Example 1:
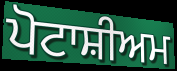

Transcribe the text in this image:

ਪੋਟਾਸ਼ੀਅਮ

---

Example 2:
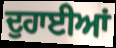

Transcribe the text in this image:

ਦੁਹਾਈਆਂ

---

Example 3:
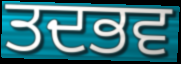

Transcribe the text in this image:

ਤਦਭਵ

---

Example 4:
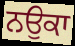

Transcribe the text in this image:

ਨਉਕਾ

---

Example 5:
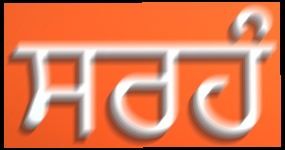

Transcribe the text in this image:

ਸਰਹੰ